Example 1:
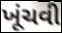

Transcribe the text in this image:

ખૂંચવી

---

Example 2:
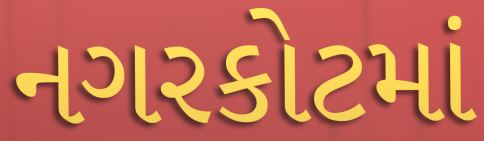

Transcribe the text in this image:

નગરકોટમાં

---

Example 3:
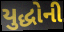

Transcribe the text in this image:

યુદ્ધોની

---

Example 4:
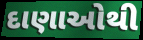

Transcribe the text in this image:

દાણાઓથી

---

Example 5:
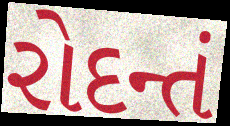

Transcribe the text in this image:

રોદન્તં